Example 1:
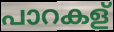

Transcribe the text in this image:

പാറകള്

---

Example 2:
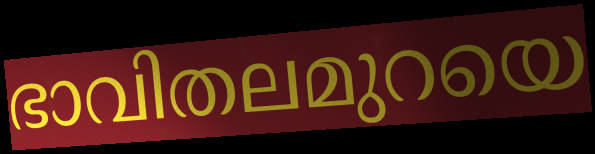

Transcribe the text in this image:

ഭാവിതലമുറയെ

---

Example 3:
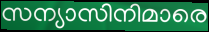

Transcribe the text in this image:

സന്യാസിനിമാരെ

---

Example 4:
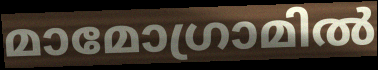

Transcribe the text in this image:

മാമോഗ്രാമിൽ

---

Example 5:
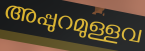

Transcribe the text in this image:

അപ്പുറമുള്ളവ